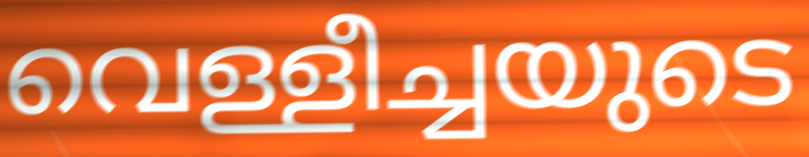
വെള്ളീച്ചയുടെ